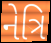
નેત્રિ